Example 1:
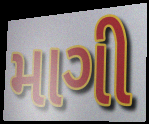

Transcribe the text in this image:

માગી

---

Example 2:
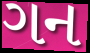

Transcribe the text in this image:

ગન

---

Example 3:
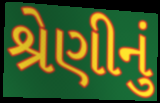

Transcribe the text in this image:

શ્રેણીનું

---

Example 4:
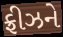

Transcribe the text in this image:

ફ્રીઝને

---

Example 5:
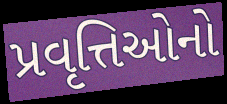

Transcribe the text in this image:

પ્રવૃત્તિઓનો